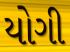
યોગી